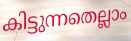
കിട്ടുന്നതെല്ലാം